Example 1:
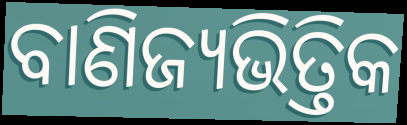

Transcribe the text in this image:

ବାଣିଜ୍ୟଭିତ୍ତିକ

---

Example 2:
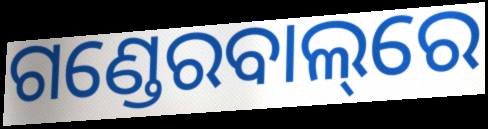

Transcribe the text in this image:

ଗଣ୍ଡେରବାଲ୍‌ରେ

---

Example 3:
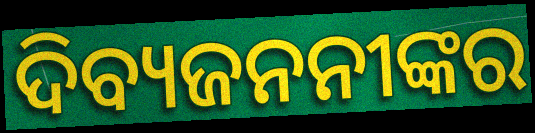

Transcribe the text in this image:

ଦିବ୍ୟଜନନୀଙ୍କର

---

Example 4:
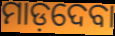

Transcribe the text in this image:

ମାଡ଼ଦେବା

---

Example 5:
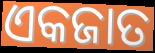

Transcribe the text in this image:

ଏକଜାତ